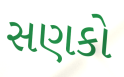
સણકો